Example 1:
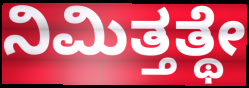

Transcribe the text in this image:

ನಿಮಿತ್ತತ್ಥೇ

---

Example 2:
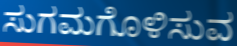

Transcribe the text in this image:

ಸುಗಮಗೊಳಿಸುವ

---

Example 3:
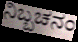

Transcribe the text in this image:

ನಿಬ್ಬಚನಂ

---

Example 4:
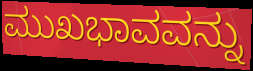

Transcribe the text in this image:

ಮುಖಭಾವವನ್ನು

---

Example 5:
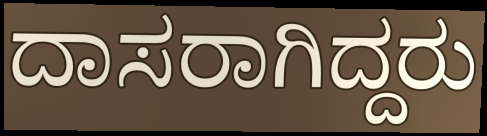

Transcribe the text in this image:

ದಾಸರಾಗಿದ್ದರು